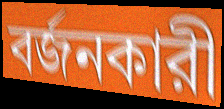
বর্জনকারী